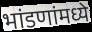
भांडणांमध्ये